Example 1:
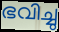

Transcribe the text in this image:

ഭവിച്ചു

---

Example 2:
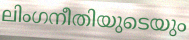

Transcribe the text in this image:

ലിംഗനീതിയുടെയും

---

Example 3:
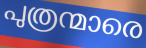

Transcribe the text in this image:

പുത്രന്മാരെ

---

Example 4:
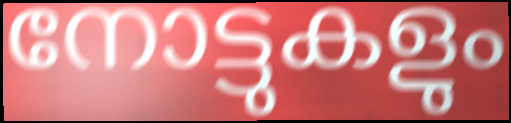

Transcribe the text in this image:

നോട്ടുകളും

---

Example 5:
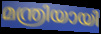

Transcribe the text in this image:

മന്ത്രിയായി